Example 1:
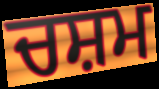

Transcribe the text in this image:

ਚਸ਼ਮ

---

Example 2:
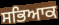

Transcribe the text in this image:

ਸਭਿਆਕ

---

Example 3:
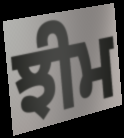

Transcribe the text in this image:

ਝੀਮ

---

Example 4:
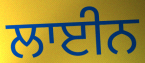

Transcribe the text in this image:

ਲਾਈਨ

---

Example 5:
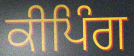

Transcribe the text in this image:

ਕੀਪਿੰਗ